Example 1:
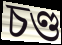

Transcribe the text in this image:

চণ্ড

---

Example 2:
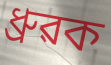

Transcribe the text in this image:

ধ্ৰুৱক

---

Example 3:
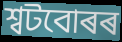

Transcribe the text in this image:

শ্বটবোৰৰ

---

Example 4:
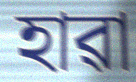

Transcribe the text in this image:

হাৱা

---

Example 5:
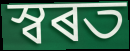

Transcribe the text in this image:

স্বৰত